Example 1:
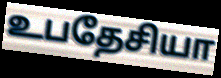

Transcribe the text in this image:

உபதேசியா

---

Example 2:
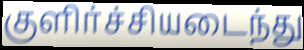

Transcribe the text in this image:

குளிர்ச்சியடைந்து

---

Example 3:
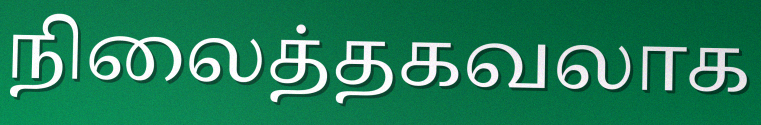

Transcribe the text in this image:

நிலைத்தகவலாக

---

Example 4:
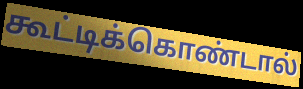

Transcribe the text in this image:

கூட்டிக்கொண்டால்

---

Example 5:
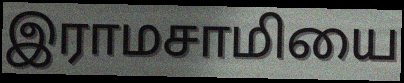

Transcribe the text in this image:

இராமசாமியை